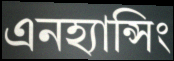
এনহ্যান্সিং